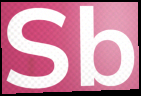
Sb